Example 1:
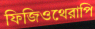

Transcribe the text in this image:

ফিজিওথেরাপি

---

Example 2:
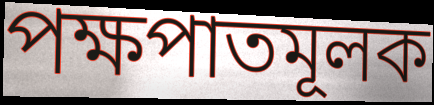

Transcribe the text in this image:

পক্ষপাতমূলক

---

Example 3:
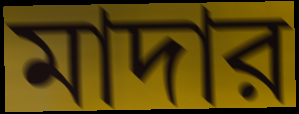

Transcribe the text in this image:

মাদার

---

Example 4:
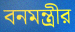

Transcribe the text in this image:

বনমন্ত্রীর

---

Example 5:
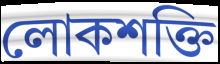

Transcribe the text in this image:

লোকশক্তি